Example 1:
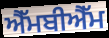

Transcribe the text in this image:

ਐੱਮਬੀਐੱਮ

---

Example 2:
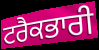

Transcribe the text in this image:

ਟਰੈਕਭਾਰੀ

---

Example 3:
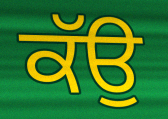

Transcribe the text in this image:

ਕੱਉ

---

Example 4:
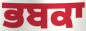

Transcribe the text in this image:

ਭਬਕਾ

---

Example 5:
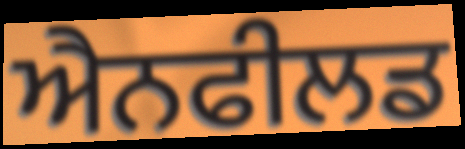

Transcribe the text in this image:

ਐਨਫੀਲਡ